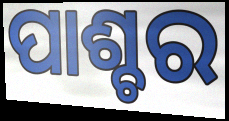
ପାଶ୍ଚର